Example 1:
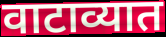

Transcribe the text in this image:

वाटाव्यात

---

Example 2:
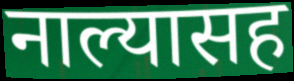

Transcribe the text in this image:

नाल्यासह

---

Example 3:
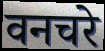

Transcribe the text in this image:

वनचरे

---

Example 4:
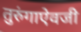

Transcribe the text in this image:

तुरुंगाऐवजी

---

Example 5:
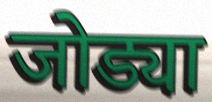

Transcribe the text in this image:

जोड्या